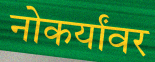
नोकर्यांवर